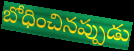
బోధించినప్పుడు